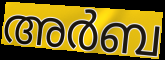
അർബ